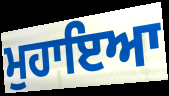
ਮੁਹਾਇਆ